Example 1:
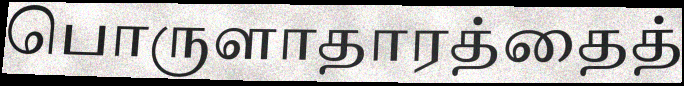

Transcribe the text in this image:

பொருளாதாரத்தைத்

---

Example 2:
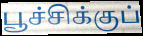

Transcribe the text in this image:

பூச்சிக்குப்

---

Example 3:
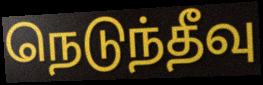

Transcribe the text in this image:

நெடுந்தீவு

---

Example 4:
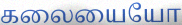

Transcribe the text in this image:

கலையையோ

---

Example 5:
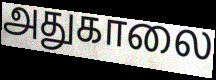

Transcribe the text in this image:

அதுகாலை